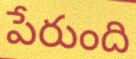
పేరుంది